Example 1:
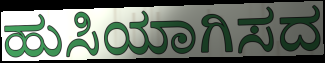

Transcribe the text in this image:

ಹುಸಿಯಾಗಿಸದ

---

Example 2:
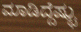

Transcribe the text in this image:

ಮಾಡಿದ್ದೆಷ್ಟು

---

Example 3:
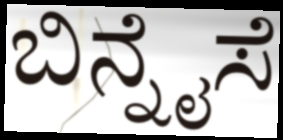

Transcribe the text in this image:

ಬಿನ್ನೈಸೆ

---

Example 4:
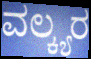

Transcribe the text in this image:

ವಲ್ಕ್ಯರ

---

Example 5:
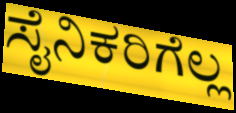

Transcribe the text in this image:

ಸೈನಿಕರಿಗೆಲ್ಲ